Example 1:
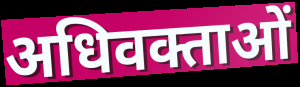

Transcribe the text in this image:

अधिवक्ताओं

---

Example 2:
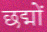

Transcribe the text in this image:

छद्मों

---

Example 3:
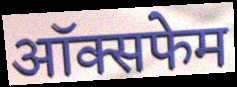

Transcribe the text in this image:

ऑक्सफेम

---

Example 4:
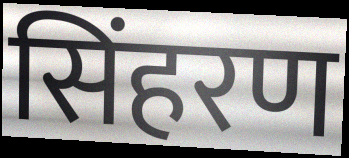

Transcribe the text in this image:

सिंहरण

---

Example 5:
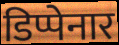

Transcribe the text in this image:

डिप्पेनार